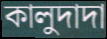
কালুদাদা